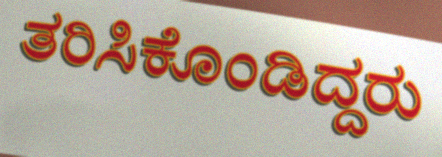
ತರಿಸಿಕೊಂಡಿದ್ದರು